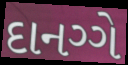
દાનગ્ગે